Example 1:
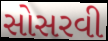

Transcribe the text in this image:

સોસરવી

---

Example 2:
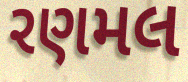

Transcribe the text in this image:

રણમલ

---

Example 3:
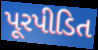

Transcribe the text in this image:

પૂરપીડિત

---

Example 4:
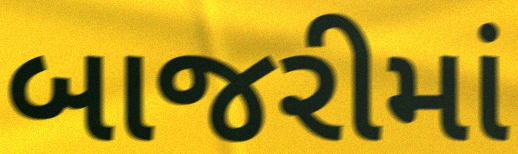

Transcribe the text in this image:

બાજરીમાં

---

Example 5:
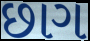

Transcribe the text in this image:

છાગ